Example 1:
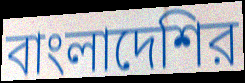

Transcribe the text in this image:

বাংলাদেশির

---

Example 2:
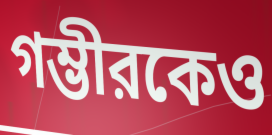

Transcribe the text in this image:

গম্ভীরকেও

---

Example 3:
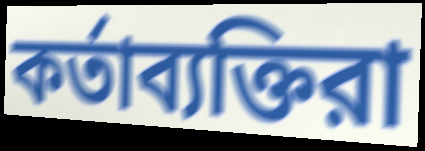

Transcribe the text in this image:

কর্তাব্যক্তিরা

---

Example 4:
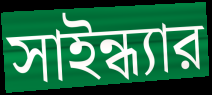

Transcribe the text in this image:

সাইন্ধ্যার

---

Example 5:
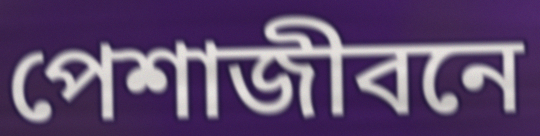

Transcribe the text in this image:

পেশাজীবনে